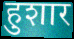
हुशार